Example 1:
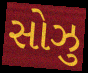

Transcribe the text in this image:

સોઝુ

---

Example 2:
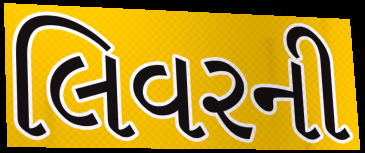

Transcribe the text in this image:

લિવરની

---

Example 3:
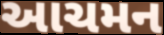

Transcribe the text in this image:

આચમન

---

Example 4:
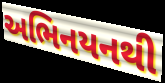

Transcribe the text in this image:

અભિનયનથી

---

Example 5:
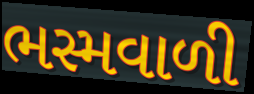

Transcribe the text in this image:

ભસ્મવાળી